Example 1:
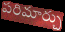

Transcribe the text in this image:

పరిమార్చు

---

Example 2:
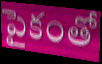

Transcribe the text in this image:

పైకంతో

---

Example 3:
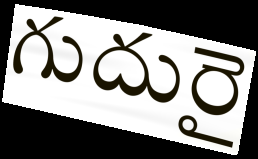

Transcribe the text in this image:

గుదురై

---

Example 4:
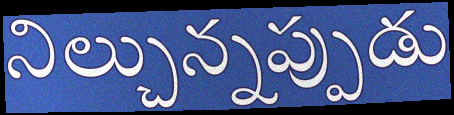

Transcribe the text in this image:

నిల్చున్నప్పుడు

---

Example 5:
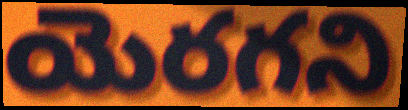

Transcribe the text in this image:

యెరగని